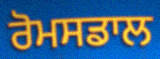
ਰੋਮਸਡਾਲ